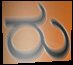
ರು